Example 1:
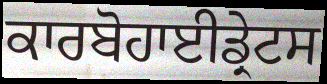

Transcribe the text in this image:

ਕਾਰਬੋਹਾਈਡ੍ਰੇਟਸ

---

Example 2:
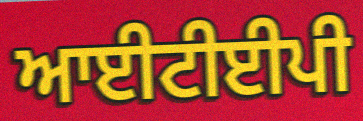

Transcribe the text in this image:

ਆਈਟੀਈਪੀ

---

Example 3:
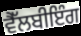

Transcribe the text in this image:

ਵੈੱਲਬੀਇੰਗ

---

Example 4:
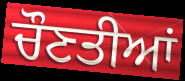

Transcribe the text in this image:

ਚੌਣਤੀਆਂ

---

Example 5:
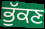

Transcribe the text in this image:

ਭੁੱਕਣ